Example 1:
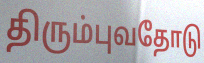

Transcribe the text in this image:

திரும்புவதோடு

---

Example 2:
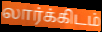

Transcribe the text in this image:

லார்க்கிடம்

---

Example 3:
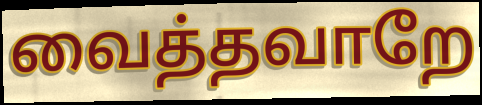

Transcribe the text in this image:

வைத்தவாறே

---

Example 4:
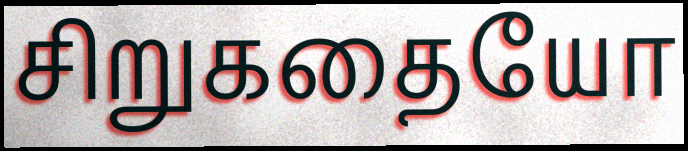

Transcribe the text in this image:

சிறுகதையோ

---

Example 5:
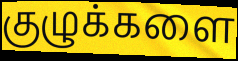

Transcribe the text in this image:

குழுக்களை